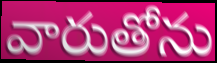
వారుతోను